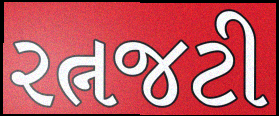
રત્નજટી